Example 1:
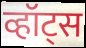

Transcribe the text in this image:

व्हॉट्स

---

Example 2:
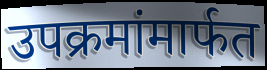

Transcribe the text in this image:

उपक्रमांमार्फत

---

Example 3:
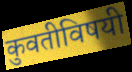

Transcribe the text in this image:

कुवतीविषयी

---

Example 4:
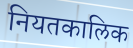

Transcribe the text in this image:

नियतकालिक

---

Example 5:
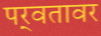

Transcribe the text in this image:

पर्वतावर